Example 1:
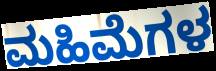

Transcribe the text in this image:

ಮಹಿಮೆಗಳ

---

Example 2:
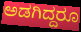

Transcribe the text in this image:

ಅಡಗಿದ್ದರೂ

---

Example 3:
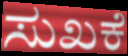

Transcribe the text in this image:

ಸುಖಕೆ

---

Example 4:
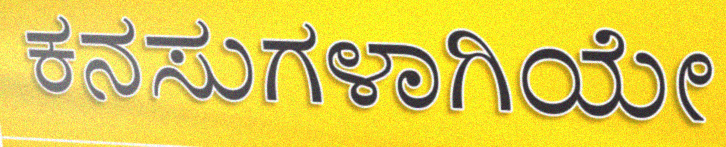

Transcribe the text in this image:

ಕನಸುಗಳಾಗಿಯೇ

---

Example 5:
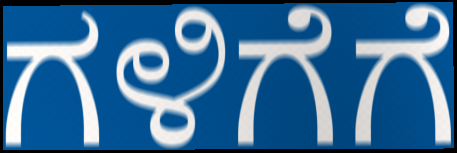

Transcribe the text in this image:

ಗಳಿಗೆಗೆ